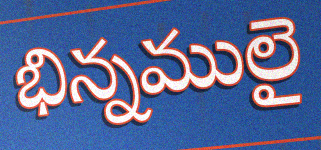
భిన్నములై